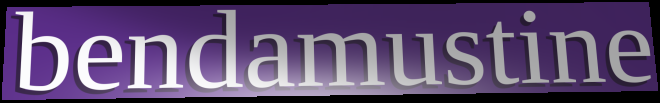
bendamustine